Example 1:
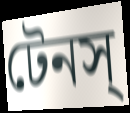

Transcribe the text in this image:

টেনস্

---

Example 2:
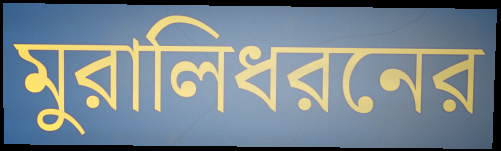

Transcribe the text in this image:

মুরালিধরনের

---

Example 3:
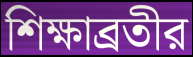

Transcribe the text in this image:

শিক্ষাব্রতীর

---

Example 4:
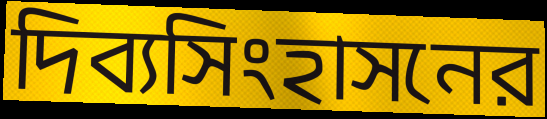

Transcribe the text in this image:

দিব্যসিংহাসনের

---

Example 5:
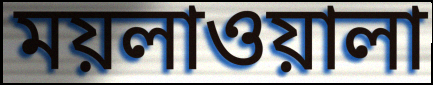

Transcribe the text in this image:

ময়লাওয়ালা